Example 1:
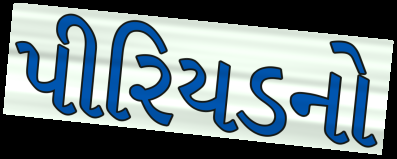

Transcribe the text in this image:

પીરિયડનો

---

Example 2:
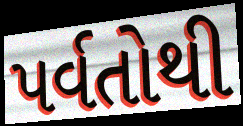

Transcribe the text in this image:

પર્વતોથી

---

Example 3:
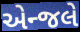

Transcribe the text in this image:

એન્જલે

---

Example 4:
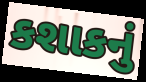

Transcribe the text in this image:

કશાકનું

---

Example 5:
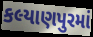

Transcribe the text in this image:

કલ્યાણપુરમાં